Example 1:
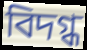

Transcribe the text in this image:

বিদগ্ধ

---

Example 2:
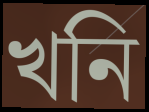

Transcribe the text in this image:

খনি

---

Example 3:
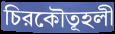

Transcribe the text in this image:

চিরকৌতূহলী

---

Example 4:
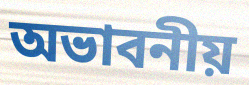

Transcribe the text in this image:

অভাবনীয়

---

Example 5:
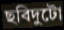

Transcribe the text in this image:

ছবিদুটো